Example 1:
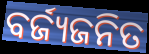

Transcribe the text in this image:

ବର୍ଜ୍ୟଜନିତ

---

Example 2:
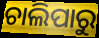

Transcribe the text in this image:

ଚାଲିପାରୁ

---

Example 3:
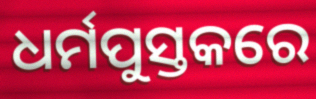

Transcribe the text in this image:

ଧର୍ମପୁସ୍ତକରେ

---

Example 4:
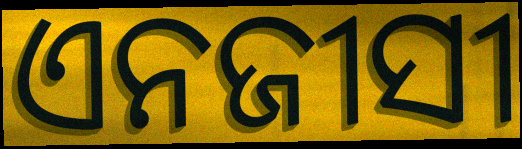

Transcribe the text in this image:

ଏନଜୀସୀ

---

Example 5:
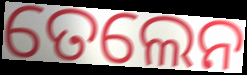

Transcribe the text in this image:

ତେଲେନ